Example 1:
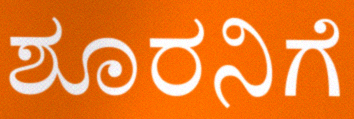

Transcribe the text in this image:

ಶೂರನಿಗೆ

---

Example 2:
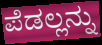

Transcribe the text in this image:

ಪೆಡಲ್ಲನ್ನು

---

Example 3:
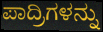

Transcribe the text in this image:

ಪಾದ್ರಿಗಳನ್ನು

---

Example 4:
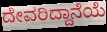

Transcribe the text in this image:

ದೇವರಿದ್ದಾನೆಯೆ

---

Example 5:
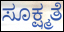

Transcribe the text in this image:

ಸೂಕ್ಷ್ಮತೆ